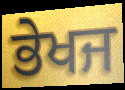
ਭੇਖਜ